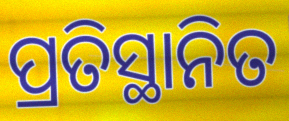
ପ୍ରତିସ୍ଥାନିତ